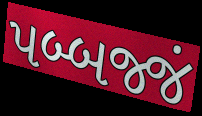
પબ્બજ્જં